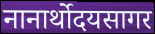
नानार्थोदयसागर